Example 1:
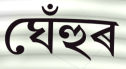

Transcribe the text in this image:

ঘেঁহুৰ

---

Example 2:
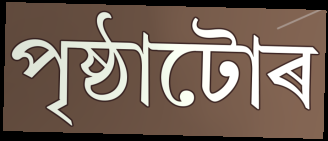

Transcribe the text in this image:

পৃষ্ঠাটোৰ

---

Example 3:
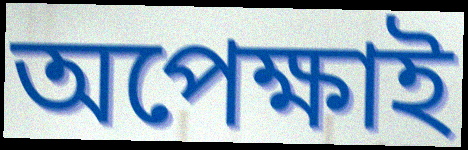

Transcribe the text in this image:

অপেক্ষাই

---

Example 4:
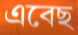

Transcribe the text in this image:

এবেছ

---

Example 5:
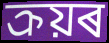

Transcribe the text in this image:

ক্ৰয়ৰ